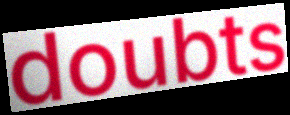
doubts